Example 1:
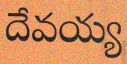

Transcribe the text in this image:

దేవయ్య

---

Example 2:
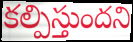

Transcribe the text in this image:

కల్పిస్తుందని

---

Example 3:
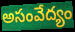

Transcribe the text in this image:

అసంవేద్యం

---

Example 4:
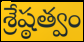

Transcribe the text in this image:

శ్రేష్ఠత్వం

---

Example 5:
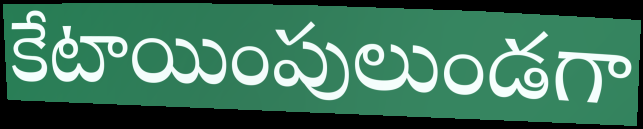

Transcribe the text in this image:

కేటాయింపులుండగా